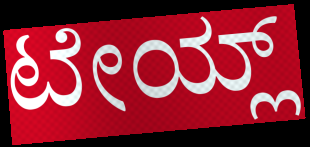
ಟೇಯ್ಲ್